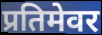
प्रतिमेवर